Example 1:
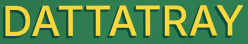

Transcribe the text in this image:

DATTATRAY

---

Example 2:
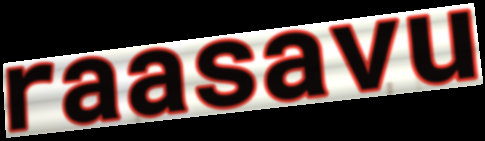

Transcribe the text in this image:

raasavu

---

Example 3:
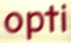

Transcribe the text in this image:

opti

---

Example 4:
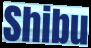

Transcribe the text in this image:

Shibu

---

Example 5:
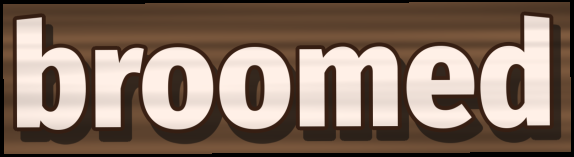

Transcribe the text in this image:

broomed